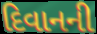
દિવાનની